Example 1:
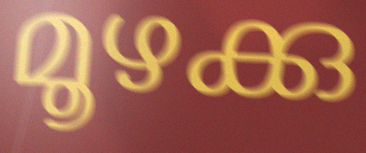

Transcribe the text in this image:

മൂഴക്കു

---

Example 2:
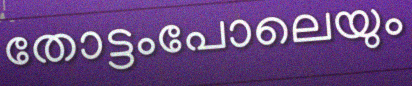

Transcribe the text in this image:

തോട്ടംപോലെയും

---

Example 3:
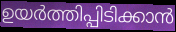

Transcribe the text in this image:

ഉയർത്തിപ്പിടിക്കാൻ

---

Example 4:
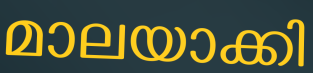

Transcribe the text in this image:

മാലയാക്കി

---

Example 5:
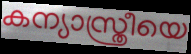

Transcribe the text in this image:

കന്യാസ്ത്രീയെ